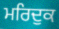
ਮਰਿਦੁਕ